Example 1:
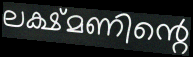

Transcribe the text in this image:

ലക്ഷ്മണിന്റെ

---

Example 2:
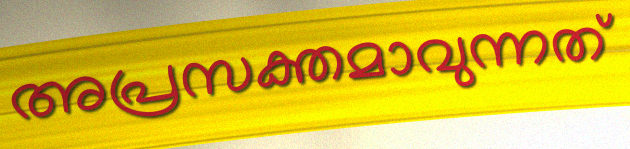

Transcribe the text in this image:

അപ്രസക്തമാവുന്നത്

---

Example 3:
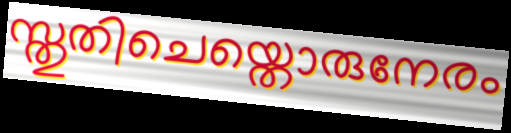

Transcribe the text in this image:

സ്തുതിചെയ്തൊരുനേരം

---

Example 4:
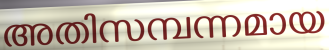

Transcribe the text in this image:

അതിസമ്പന്നമായ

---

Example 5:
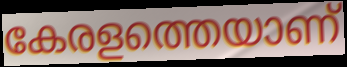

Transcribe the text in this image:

കേരളത്തെയാണ്